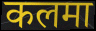
कलमा